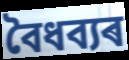
বৈধব্যৰ